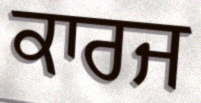
ਕਾਰਜ